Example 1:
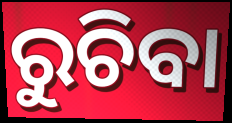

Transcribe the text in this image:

ରୁଚିବା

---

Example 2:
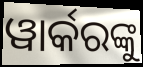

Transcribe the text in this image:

ୱାର୍କରଙ୍କୁ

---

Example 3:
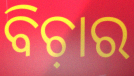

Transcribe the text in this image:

ବିଚ଼ାର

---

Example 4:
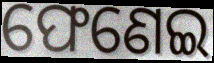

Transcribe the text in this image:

ଫେଣେଇ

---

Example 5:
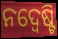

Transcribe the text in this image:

ନଦ୍ୱେଷ୍ଟି